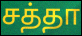
சத்தா